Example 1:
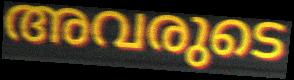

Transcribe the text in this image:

അവരുടെ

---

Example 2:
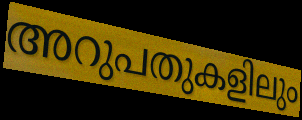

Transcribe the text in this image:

അറുപതുകളിലും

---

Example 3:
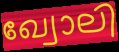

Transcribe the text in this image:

ഖ്വോലി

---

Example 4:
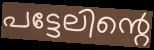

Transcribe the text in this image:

പട്ടേലിന്റെ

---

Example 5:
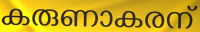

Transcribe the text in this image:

കരുണാകരന്